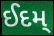
ઈદમ્